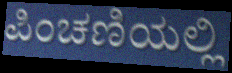
ಪಿಂಚಣಿಯಲ್ಲಿ